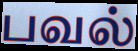
பவல்